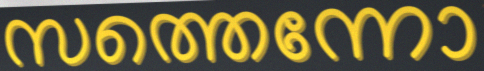
സത്തെന്നോ